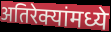
अतिरेक्यांमध्ये